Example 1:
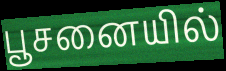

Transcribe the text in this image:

பூசனையில்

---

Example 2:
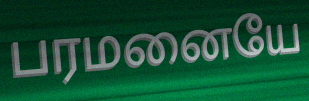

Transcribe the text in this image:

பரமனையே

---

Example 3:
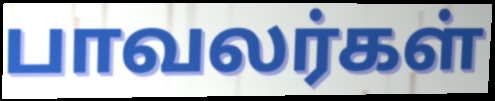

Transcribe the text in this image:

பாவலர்கள்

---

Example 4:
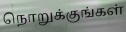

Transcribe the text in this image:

நொறுக்குங்கள்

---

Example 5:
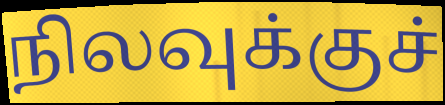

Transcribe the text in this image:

நிலவுக்குச்